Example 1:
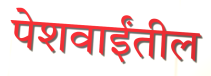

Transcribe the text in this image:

पेशवाईंतील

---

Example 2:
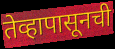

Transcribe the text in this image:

तेव्हापासूनची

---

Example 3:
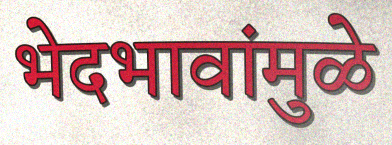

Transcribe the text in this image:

भेदभावांमुळे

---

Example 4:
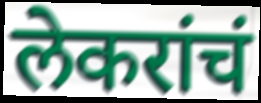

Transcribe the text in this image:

लेकरांचं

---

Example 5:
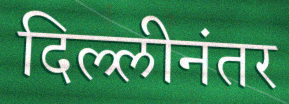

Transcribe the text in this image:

दिल्लीनंतर